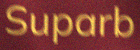
Suparb